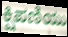
ಕ್ಷಿಪಣಿಯು